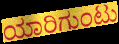
ಯಾರಿಗುಂಟು